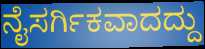
ನೈಸರ್ಗಿಕವಾದದ್ದು